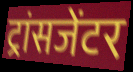
ट्रांसजेंटर